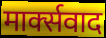
मार्क्‍सवाद